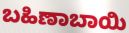
ಬಹಿಣಾಬಾಯಿ